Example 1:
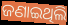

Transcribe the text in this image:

ଜଣାଇଥିଲି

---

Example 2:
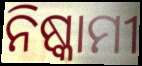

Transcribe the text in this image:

ନିଷ୍କାମୀ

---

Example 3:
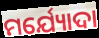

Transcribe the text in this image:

ମର୍ଯ୍ୟୋଦା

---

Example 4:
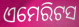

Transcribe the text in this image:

ଏମେରିଟସ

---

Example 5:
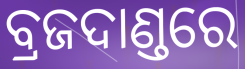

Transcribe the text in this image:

ବ୍ରଜଦାଣ୍ଡରେ